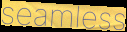
seamless